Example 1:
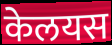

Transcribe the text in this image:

केलयस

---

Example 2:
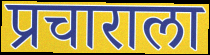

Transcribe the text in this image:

प्रचाराला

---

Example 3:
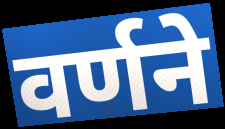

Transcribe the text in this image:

वर्णने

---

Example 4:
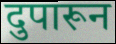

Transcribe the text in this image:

दुपारून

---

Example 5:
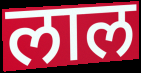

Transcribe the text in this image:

लाल